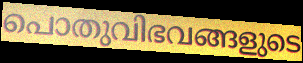
പൊതുവിഭവങ്ങളുടെ